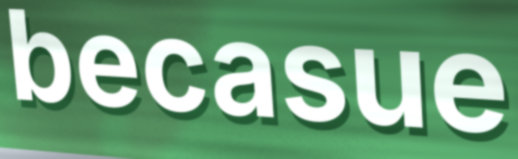
becasue